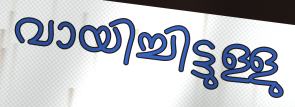
വായിച്ചിട്ടുള്ളു